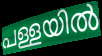
പള്ളയിൽ